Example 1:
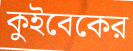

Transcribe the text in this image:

কুইবেকের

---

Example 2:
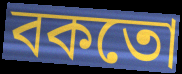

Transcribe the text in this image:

বকতো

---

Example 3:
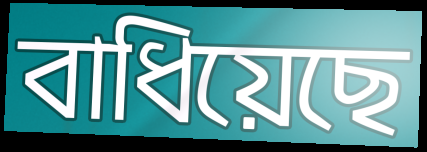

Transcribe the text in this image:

বাধিয়েছে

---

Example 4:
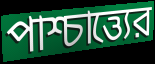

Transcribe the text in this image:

পাশ্চাত্ত্যের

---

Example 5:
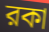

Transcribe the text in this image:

রকা